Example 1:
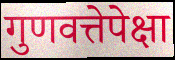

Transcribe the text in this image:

गुणवत्तेपेक्षा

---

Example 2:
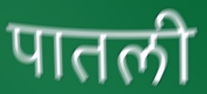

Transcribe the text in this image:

पातली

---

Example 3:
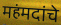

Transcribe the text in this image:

महंमदांचे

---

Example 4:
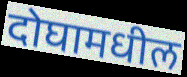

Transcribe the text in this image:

दोघामधील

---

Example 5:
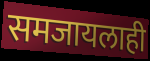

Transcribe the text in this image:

समजायलाही